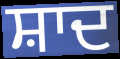
ਸ਼ਾਦ